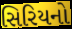
સિરિયનો